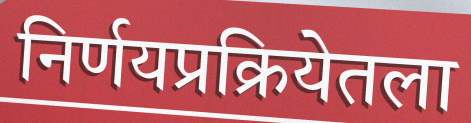
निर्णयप्रक्रियेतला